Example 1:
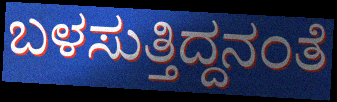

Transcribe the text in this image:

ಬಳಸುತ್ತಿದ್ದನಂತೆ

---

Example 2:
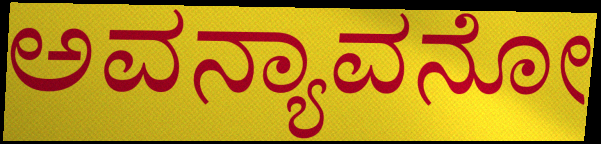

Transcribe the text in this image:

ಅವನ್ಯಾವನೋ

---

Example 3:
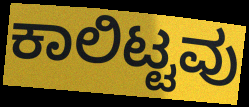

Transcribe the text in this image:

ಕಾಲಿಟ್ಟವು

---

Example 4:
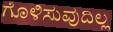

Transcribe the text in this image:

ಗೊಳಿಸುವುದಿಲ್ಲ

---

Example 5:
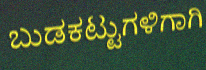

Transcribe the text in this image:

ಬುಡಕಟ್ಟುಗಳಿಗಾಗಿ